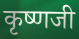
कृष्णजी